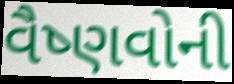
વૈષ્ણવોની